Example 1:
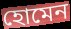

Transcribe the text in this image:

হোমেন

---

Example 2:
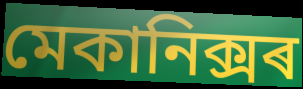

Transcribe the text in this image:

মেকানিক্সৰ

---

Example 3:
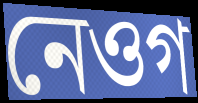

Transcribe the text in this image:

নেওগ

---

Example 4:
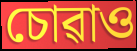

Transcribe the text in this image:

চোৱাও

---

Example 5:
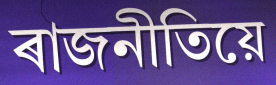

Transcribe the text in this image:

ৰাজনীতিয়ে